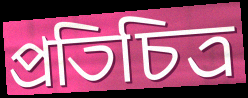
প্রতিচিত্র